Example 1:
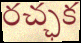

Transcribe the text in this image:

రచ్ఛక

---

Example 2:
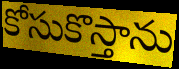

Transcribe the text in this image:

కోసుకొస్తాను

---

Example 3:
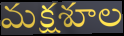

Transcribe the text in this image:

మక్షశూల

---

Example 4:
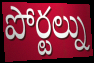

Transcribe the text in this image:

పోర్టల్ను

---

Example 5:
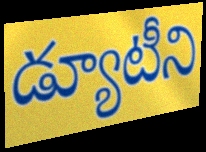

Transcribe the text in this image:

డ్యూటీని